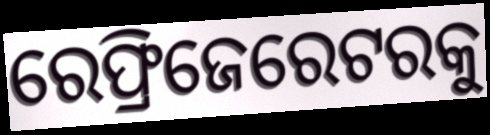
ରେଫ୍ରିଜେରେଟରକୁ